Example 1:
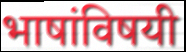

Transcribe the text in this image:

भाषांविषयी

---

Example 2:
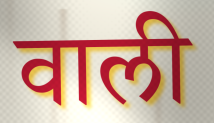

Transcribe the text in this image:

वाली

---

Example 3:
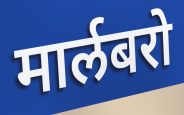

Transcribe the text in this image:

मार्लबरो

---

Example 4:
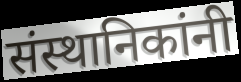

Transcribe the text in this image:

संस्थानिकांनी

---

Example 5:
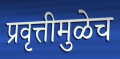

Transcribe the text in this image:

प्रवृत्तीमुळेच